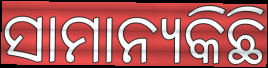
ସାମାନ୍ୟକିଛି